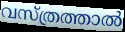
വസ്ത്രത്താൽ